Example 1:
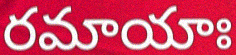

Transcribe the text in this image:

రమాయాః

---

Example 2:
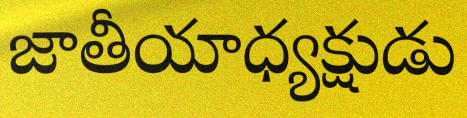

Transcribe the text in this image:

జాతీయాధ్యక్షుడు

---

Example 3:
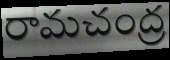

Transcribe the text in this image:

రామచంద్ర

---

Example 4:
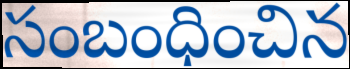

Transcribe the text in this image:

సంబంధించిన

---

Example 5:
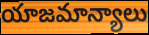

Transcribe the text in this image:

యాజమాన్యాలు